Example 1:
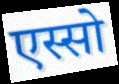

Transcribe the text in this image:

एस्सो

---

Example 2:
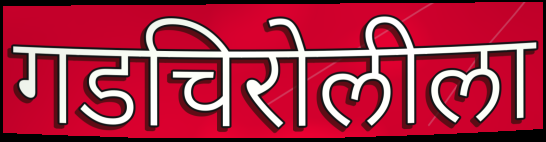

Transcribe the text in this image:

गडचिरोलीला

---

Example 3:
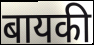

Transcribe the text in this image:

बायकी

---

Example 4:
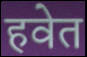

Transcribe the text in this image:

हवेत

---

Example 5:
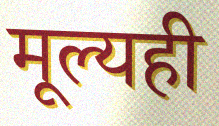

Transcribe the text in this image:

मूल्यही